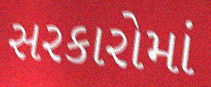
સરકારોમાં